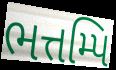
ભત્તમ્પિ